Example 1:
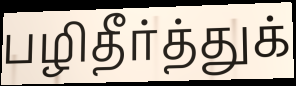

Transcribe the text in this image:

பழிதீர்த்துக்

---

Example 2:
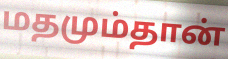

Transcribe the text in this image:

மதமும்தான்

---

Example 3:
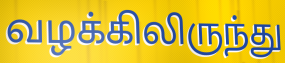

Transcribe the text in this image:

வழக்கிலிருந்து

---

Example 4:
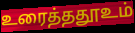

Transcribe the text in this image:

உரைத்ததூஉம்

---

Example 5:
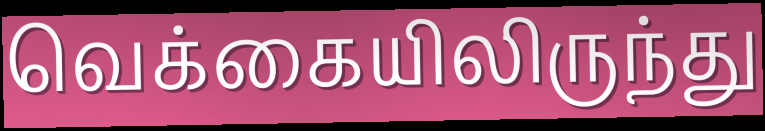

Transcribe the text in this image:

வெக்கையிலிருந்து